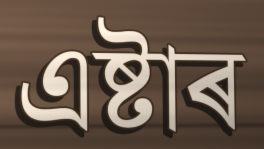
এষ্টাৰ